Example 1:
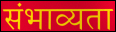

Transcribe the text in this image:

संभाव्यता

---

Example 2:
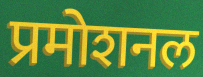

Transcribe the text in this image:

प्रमोशनल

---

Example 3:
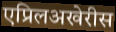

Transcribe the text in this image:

एप्रिलअखेरीस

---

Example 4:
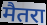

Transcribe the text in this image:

मैतरा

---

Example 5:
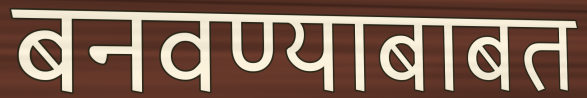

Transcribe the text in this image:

बनवण्याबाबत